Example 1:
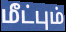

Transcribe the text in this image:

மீட்பும்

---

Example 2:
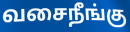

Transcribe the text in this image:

வசைநீங்கு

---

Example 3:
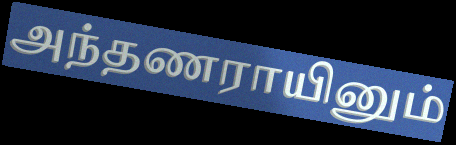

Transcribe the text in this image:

அந்தணராயினும்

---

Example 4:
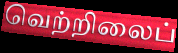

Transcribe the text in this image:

வெற்றிலைப்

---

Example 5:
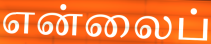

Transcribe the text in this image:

என்லைப்